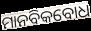
ମାନବିକବୋଧ